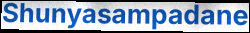
Shunyasampadane